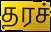
தரச்